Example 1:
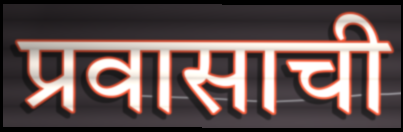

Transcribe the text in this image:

प्रवासाची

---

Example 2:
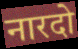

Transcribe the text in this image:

नारदो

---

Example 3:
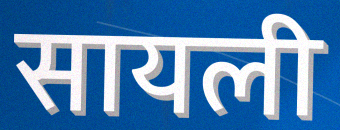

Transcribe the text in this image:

सायली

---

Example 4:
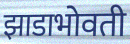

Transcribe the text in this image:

झाडाभोवती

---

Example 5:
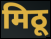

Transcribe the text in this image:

मिठू